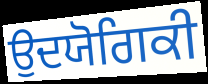
ਉਦਯੋਗਿਕੀ